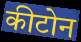
कीटोन